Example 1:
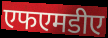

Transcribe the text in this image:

एफएमडीए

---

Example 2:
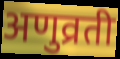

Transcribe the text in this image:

अणुव्रती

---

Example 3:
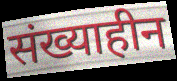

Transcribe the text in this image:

संख्याहीन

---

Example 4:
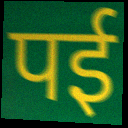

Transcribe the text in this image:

पई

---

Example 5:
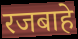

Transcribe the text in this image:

रजबाहे